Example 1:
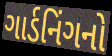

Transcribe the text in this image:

ગાર્ડનિંગનો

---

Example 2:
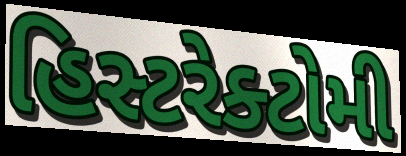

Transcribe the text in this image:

હિસ્ટરેક્ટોમી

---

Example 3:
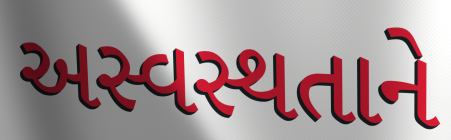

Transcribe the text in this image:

અસ્વસ્થતાને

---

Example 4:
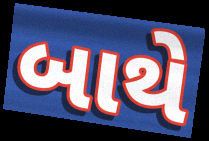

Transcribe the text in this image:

બાથે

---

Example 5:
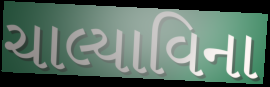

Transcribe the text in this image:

ચાલ્યાવિના